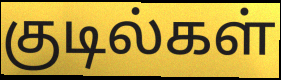
குடில்கள்